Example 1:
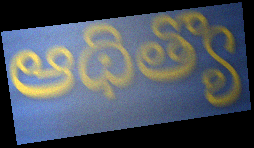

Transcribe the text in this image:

ఆథిత్యొ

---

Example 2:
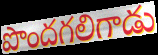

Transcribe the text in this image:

పొందగలిగాడు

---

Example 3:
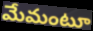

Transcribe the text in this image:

మేమంటూ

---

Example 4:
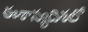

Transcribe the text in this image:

ఈశాన్యదిశలో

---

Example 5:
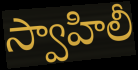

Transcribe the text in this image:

స్వాహిలీ